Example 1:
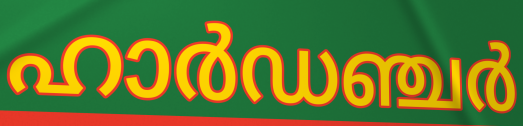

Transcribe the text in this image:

ഹാർഡഞ്ചർ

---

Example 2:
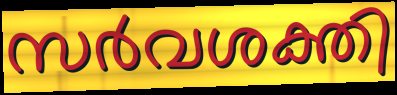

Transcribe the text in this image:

സർവശക്തി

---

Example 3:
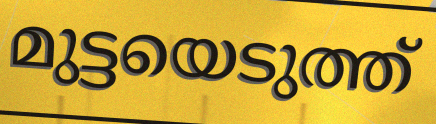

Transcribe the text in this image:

മുട്ടയെടുത്ത്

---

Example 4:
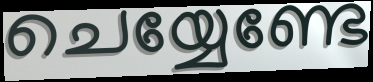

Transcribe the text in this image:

ചെയ്യേണ്ടേ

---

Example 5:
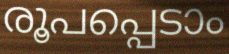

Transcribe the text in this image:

രൂപപ്പെടാം